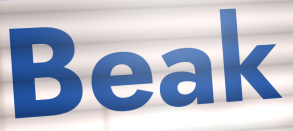
Beak